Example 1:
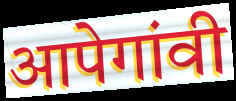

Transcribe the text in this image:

आपेगांवी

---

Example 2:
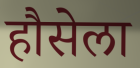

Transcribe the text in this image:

हौसेला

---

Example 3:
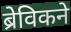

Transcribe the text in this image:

ब्रेविकने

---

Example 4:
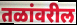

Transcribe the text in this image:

तळांवरील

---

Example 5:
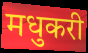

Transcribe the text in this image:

मधुकरी